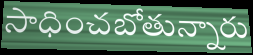
సాధించబోతున్నారు